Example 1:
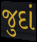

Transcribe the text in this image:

જુદાં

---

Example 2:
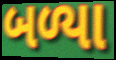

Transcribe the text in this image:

બળ્યા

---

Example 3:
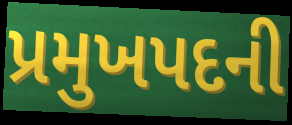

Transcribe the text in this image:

પ્રમુખપદની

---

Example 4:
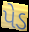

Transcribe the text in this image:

પેડ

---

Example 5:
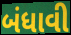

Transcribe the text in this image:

બંધાવી